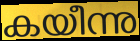
കയീന്നു